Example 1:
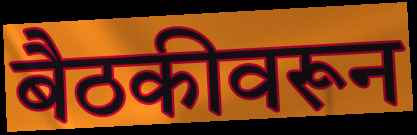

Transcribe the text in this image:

बैठकीवरून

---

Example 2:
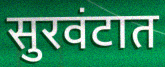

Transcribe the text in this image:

सुरवंटात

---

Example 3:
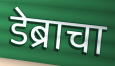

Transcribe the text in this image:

डेब्राचा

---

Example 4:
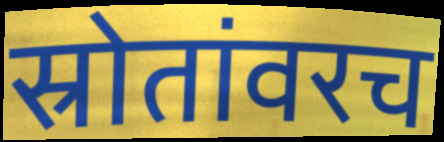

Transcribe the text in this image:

स्रोतांवरच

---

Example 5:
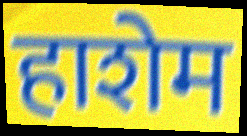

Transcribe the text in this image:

हाशेम